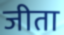
जीता